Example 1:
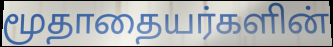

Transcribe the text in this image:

மூதாதையர்களின்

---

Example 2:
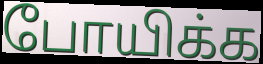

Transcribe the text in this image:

போயிக்க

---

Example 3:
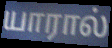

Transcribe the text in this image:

யாரால்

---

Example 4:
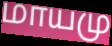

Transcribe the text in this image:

மாயமு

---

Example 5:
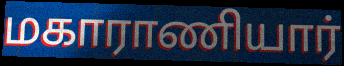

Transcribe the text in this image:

மகாராணியார்